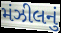
મંઝીલનું